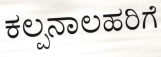
ಕಲ್ಪನಾಲಹರಿಗೆ